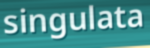
singulata